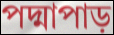
পদ্মাপাড়